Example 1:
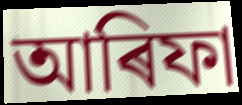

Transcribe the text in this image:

আৰিফা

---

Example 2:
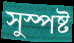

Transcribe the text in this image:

সুস্পষ্ট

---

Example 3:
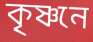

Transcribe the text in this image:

কৃষ্ণনে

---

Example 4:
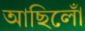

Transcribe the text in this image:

আছিলোঁ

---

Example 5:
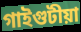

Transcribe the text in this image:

গাইগুটীয়া